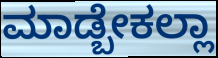
ಮಾಡ್ಬೇಕಲ್ಲಾ